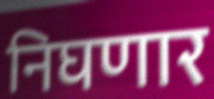
निघणार